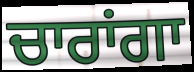
ਚਾਰਾਂਗਾ